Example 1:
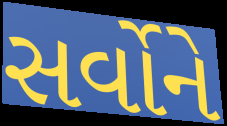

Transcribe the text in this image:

સર્વોને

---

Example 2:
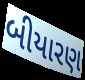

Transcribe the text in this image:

બીયારણ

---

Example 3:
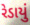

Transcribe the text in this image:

રેડાયું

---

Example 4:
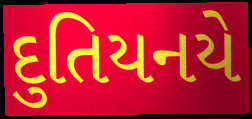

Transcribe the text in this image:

દુતિયનયે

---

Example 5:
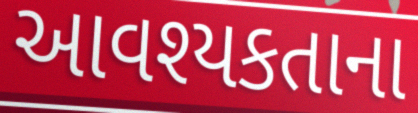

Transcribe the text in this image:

આવશ્યકતાના